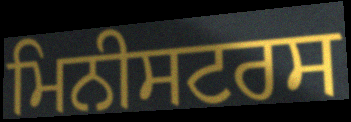
ਮਿਨੀਸਟਰਸ